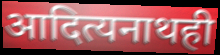
आदित्यनाथही